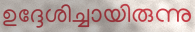
ഉദ്ദേശിച്ചായിരുന്നു